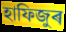
হাফিজুৰ